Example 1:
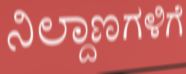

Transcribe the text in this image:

ನಿಲ್ದಾಣಗಳಿಗೆ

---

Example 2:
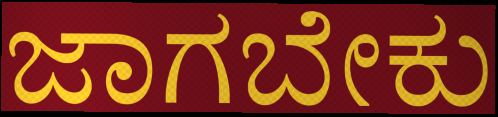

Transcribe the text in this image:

ಜಾಗಬೇಕು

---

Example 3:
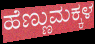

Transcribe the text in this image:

ಹೆಣ್ಣುಮಕ್ಕಳ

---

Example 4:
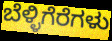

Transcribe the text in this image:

ಬೆಳ್ಳಿಗೆರೆಗಳು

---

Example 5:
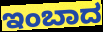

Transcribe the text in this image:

ಇಂಬಾದ